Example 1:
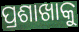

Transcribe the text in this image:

ପ୍ରଶାଖାକୁ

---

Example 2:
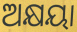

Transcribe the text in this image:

ଅକ୍ଷୟା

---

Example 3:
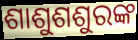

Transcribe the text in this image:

ଶାଶୁଶଶୁରଙ୍କ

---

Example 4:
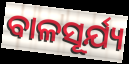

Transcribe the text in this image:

ବାଳସୂର୍ଯ୍ୟ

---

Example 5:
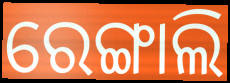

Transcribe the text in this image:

ରେଙ୍ଗାଲି